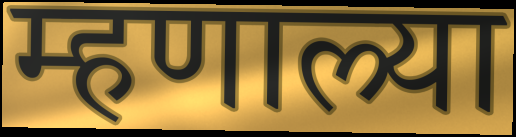
म्हणाल्या